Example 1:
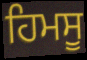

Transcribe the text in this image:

ਹਿਮਸੂ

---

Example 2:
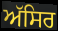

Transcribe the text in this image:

ਅੱਸਿਰ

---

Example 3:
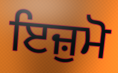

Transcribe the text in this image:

ਇਜ਼ੁਮੋ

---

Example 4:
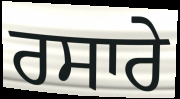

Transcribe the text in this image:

ਰਸਾਰੇ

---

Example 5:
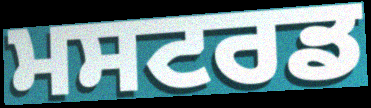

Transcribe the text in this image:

ਮਸਟਰਡ